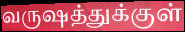
வருஷத்துக்குள்